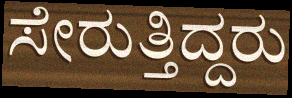
ಸೇರುತ್ತಿದ್ದರು